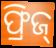
ଫ୍ରିଜ୍